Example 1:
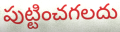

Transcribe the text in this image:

పుట్టించగలదు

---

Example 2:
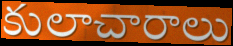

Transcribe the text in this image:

కులాచారాలు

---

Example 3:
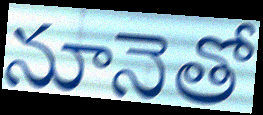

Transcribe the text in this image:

నూనెతో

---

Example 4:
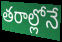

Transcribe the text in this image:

తరాల్లోనే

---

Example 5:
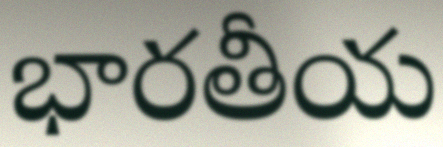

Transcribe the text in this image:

భారతీయ